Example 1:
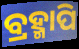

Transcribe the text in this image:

ବ୍ରହ୍ମାପି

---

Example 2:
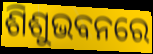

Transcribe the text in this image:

ଶିଶୁଭବନରେ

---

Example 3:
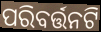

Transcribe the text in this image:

ପରିବର୍ତ୍ତନଟି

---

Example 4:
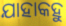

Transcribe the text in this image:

ଯାହାକହୁ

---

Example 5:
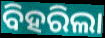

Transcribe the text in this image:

ବିହରିଲା